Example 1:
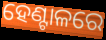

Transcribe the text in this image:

ହେଣ୍ଟାଳରେ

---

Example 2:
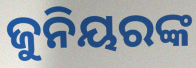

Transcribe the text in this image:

ଜୁନିୟରଙ୍କ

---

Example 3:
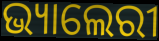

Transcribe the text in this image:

ଭ୍ୟାଲେରୀ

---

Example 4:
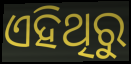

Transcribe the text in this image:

ଏହିଥିରୁ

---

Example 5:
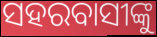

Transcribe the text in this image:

ସହରବାସୀଙ୍କୁ